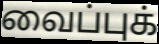
வைப்புக்